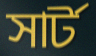
সার্ট